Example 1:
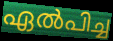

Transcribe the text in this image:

ഏൽപിച്ച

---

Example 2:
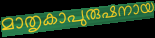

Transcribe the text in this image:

മാതൃകാപുരുഷനായ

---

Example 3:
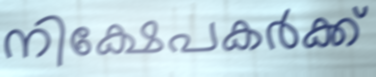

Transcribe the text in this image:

നിക്ഷേപകർക്ക്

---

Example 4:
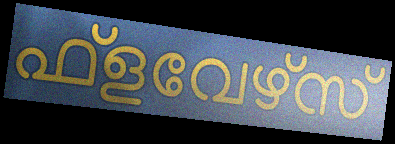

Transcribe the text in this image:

ഫ്ളവേഴ്സ്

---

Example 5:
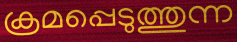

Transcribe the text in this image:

ക്രമപ്പെടുത്തുന്ന